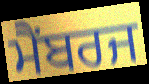
ਮੈਂਬਰਜ